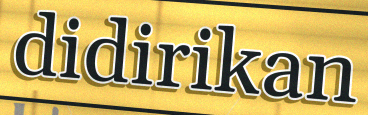
didirikan